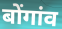
बोंगांव